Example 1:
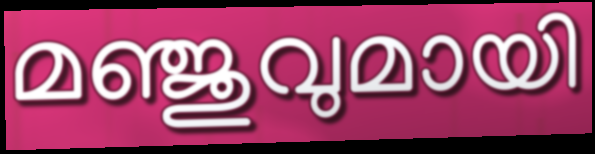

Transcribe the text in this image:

മഞ്ജുവുമായി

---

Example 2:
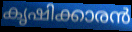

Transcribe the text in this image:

കൃഷിക്കാരൻ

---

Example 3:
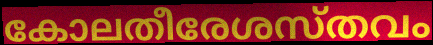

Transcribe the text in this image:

കോലതീരേശസ്തവം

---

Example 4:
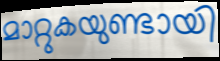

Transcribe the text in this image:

മാറ്റുകയുണ്ടായി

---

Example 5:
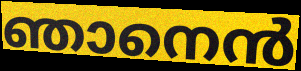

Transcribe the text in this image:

ഞാനെൻ